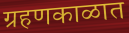
ग्रहणकाळात